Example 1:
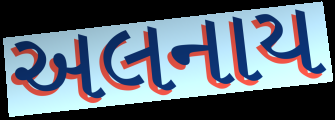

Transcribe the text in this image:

અલનાય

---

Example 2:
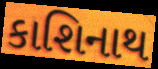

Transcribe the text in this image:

કાશિનાથ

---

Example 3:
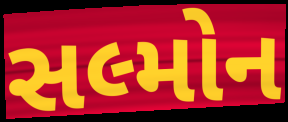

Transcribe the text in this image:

સલ્મોન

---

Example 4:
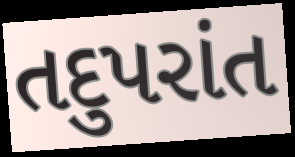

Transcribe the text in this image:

તદુપરાંત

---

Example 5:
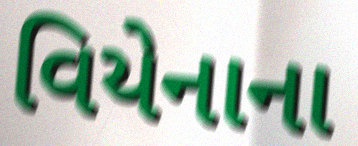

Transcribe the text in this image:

વિયેનાના